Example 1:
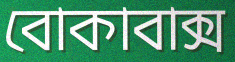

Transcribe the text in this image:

বোকাবাক্স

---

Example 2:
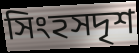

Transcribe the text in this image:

সিংহসদৃশ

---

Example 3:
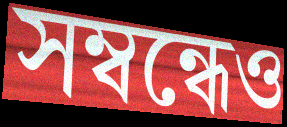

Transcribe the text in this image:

সম্বন্ধেও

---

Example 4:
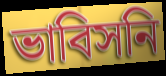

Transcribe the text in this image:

ভাবিসনি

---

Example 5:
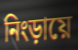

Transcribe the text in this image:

নিংড়ায়ে